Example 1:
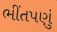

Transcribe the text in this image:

ભીંતપણું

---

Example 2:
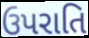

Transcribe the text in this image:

ઉપરાતિ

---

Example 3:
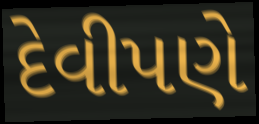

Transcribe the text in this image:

દેવીપણે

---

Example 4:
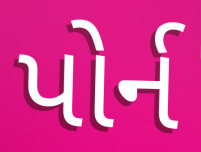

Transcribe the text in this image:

પોર્ન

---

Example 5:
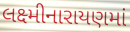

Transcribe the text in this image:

લક્ષ્મીનારાયણમાં